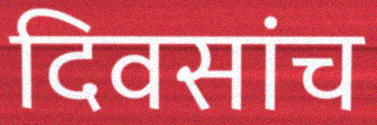
दिवसांच